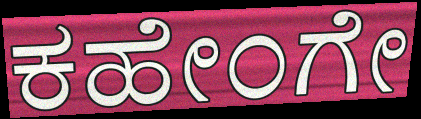
ಕಹೇಂಗೇ